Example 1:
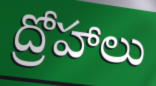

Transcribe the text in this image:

ద్రోహాలు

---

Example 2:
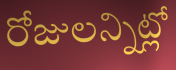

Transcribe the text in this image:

రోజులన్నిట్లో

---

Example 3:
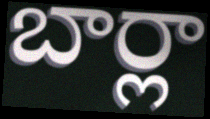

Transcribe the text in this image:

బార్లా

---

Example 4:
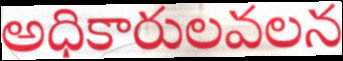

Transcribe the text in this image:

అధికారులవలన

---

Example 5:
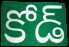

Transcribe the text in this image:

కోడ్